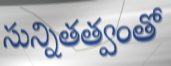
సున్నితత్వంతో